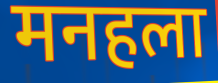
मनहला